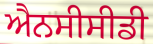
ਐਨਸੀਸੀਡੀ